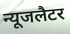
न्यूजलैटर